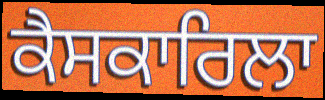
ਕੈਸਕਾਰਿਲਾ